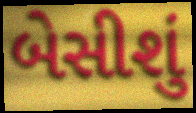
બેસીશું